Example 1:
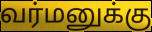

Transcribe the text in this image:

வர்மனுக்கு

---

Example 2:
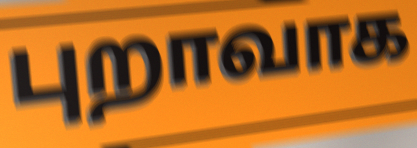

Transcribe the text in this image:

புறாவாக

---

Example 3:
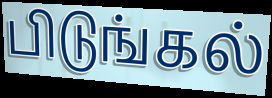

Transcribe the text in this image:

பிடுங்கல்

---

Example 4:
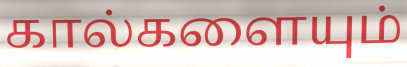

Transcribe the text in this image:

கால்களையும்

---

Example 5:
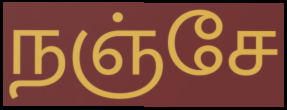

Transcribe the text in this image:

நஞ்சே